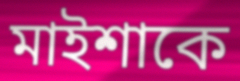
মাইশাকে